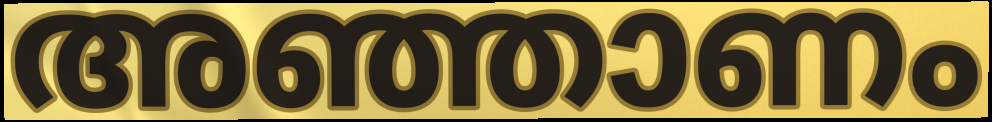
അഞ്ഞാണം